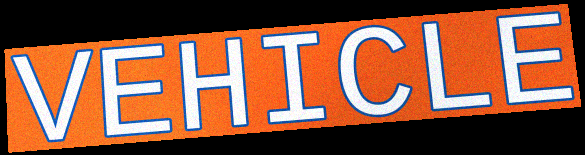
VEHICLE